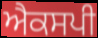
ਐਕਸਪੀ